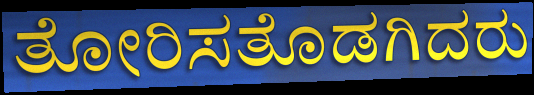
ತೋರಿಸತೊಡಗಿದರು